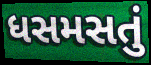
ધસમસતું